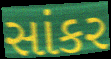
સાંકર